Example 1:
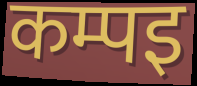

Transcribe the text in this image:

कम्पइ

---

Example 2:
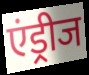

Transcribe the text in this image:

एंड्रीज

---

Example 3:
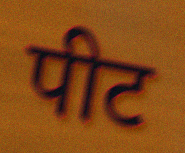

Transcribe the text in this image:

पीट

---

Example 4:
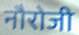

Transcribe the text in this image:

नौरोजी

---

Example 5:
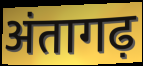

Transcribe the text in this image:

अंतागढ़